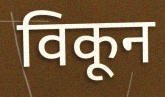
विकून